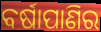
ବର୍ଷାପାଣିର